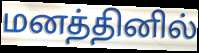
மனத்தினில்